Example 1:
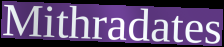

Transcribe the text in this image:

Mithradates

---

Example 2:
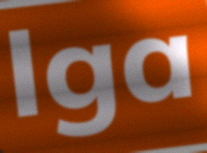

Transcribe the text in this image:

Iga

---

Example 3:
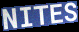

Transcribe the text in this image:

NITES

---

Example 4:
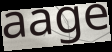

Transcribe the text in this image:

aage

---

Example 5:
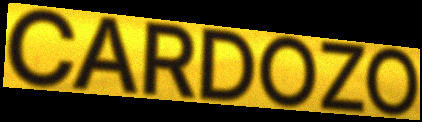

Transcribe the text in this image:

CARDOZO